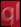
ql